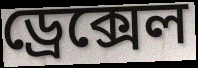
ড্রেক্সেল